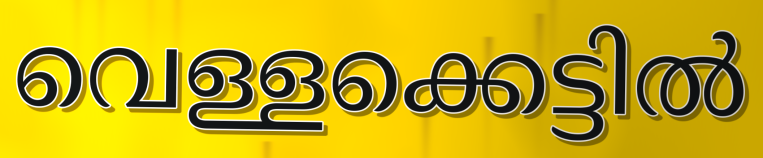
വെള്ളക്കെട്ടിൽ